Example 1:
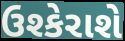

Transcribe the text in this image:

ઉશ્કેરાશે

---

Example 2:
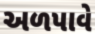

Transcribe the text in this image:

અળપાવે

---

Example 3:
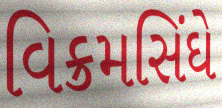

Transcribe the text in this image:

વિક્રમસિંઘે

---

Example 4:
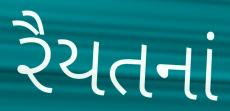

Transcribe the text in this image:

રૈયતનાં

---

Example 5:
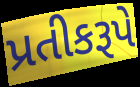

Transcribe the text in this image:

પ્રતીકરૂપે